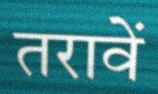
तरावें